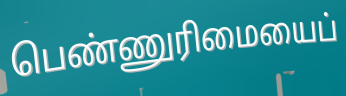
பெண்ணுரிமையைப்